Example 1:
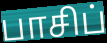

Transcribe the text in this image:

பாசிப்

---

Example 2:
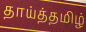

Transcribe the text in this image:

தாய்த்தமிழ்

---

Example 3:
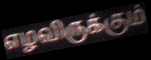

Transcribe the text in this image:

எழவிருக்கும்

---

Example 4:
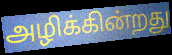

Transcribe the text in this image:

அழிக்கின்றது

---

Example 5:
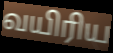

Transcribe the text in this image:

வயிரிய